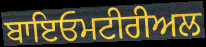
ਬਾਇਓਮਟੀਰੀਅਲ